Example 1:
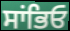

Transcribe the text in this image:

ਸਾਂਭਿਓ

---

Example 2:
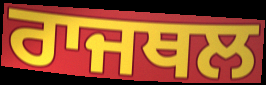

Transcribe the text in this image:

ਰਾਜਥਲ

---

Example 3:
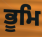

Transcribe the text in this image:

ਭੂਮਿ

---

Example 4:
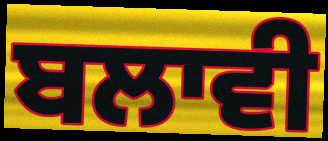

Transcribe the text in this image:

ਬਲਾਵੀ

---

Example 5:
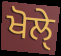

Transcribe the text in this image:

ਖੋਲੑੇ